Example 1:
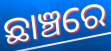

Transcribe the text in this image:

ଛାଞ୍ଚରେ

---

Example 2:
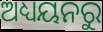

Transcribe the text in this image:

ଅଧ୍ୟୟନରୁ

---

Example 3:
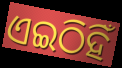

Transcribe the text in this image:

ଏଇଠିହିଁ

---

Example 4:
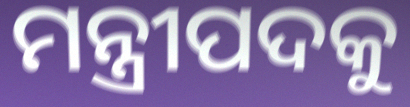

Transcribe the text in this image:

ମନ୍ତ୍ରୀପଦକୁ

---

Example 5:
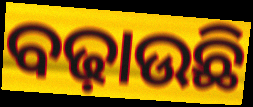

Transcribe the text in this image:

ବଢ଼ାଉଛି